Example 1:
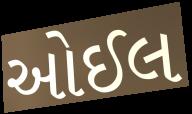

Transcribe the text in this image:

ઓઈલ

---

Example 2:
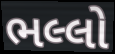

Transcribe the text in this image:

ભલ્લો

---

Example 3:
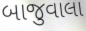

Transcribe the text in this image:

બાજુવાલા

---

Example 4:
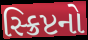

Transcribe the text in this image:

સ્ક્રિપ્ટનો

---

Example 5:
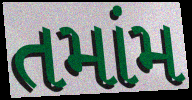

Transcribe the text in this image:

તમાંમ